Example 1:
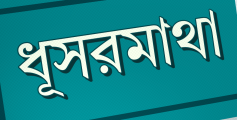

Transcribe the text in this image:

ধূসরমাথা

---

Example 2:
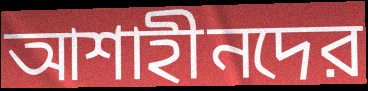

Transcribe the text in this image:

আশাহীনদের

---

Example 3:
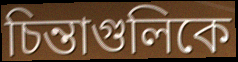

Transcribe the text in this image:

চিন্তাগুলিকে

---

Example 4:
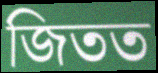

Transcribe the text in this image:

জিতত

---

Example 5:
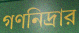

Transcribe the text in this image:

গণনিদ্রার